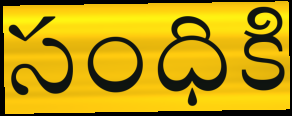
సంధికి